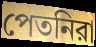
পেতনিরা